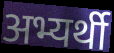
अभ्यर्थी